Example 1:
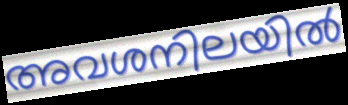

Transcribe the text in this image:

അവശനിലയിൽ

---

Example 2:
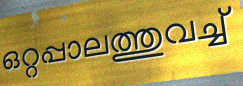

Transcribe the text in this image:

ഒറ്റപ്പാലത്തുവച്ച്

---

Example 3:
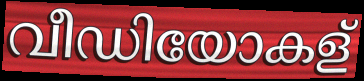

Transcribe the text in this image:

വീഡിയോകള്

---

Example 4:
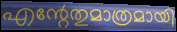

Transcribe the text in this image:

എന്റേതുമാത്രമായി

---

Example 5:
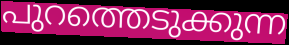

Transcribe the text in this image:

പുറത്തെടുക്കുന്ന